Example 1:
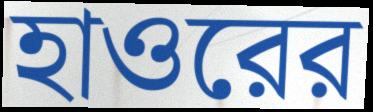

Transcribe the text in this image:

হাওরের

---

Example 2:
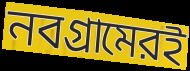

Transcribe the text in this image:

নবগ্রামেরই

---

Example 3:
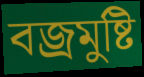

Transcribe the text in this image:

বজ্রমুষ্টি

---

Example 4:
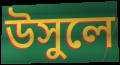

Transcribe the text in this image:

উসুলে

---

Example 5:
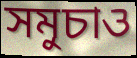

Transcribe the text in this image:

সমুচাও